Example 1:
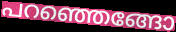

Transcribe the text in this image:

പറഞ്ഞെങ്ങോ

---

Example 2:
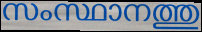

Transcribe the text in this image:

സംസ്ഥാനത്തു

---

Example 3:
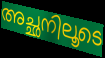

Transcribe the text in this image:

അച്ഛനിലൂടെ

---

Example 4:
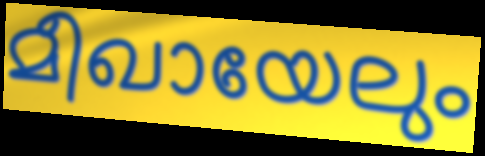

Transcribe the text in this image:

മീഖായേലും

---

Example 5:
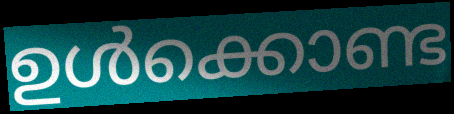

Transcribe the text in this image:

ഉൾക്കൊണ്ട